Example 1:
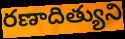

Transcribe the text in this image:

రణాదిత్యుని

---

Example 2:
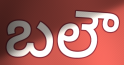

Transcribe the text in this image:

బలౌ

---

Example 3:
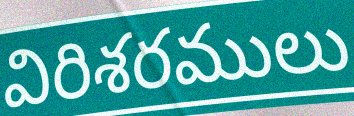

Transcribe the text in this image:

విరిశరములు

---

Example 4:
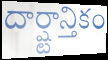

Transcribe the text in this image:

దార్ష్టాన్తికం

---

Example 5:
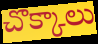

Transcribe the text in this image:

చొక్కాలు